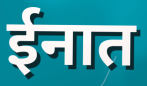
ईनात